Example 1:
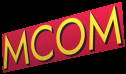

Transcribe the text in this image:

MCOM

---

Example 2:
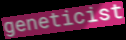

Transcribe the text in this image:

geneticist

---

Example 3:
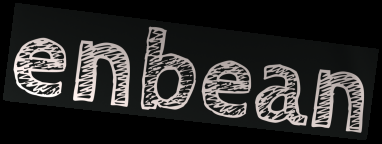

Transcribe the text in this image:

enbean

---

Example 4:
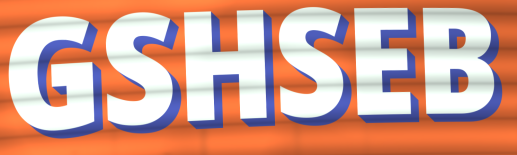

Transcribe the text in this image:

GSHSEB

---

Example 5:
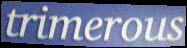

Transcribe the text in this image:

trimerous